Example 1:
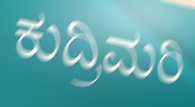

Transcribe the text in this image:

ಕುದ್ರಿಮರಿ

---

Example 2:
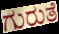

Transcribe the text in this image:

ಗುರುತೆ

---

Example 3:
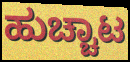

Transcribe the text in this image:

ಹುಚ್ಚಾಟ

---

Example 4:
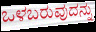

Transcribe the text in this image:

ಒಳಬರುವುದನ್ನು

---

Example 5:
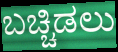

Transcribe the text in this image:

ಬಚ್ಚಿಡಲು